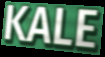
KALE